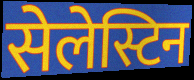
सेलेस्टिन